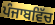
ਪੰਜਾਬਵਿੱਚ